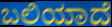
ಬಲಿಯಾದೆ